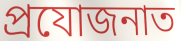
প্ৰযোজনাত